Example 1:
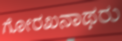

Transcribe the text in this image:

ಗೋರಖನಾಥರು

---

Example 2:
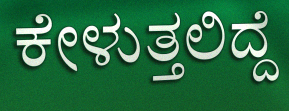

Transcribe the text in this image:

ಕೇಳುತ್ತಲಿದ್ದೆ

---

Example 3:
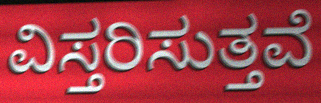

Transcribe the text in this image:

ವಿಸ್ತರಿಸುತ್ತವೆ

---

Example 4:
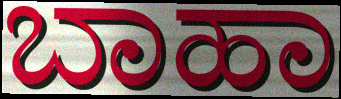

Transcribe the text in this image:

ಬಾಹಾ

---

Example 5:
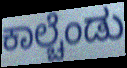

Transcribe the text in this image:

ಕಾಲ್ಚೆಂಡು